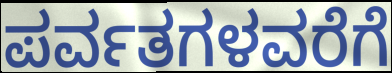
ಪರ್ವತಗಳವರೆಗೆ